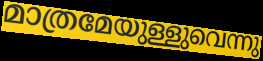
മാത്രമേയുള്ളുവെന്നു